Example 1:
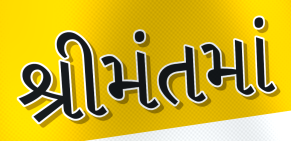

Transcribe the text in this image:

શ્રીમંતમાં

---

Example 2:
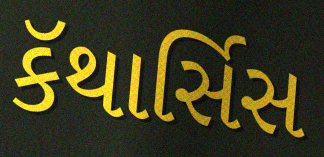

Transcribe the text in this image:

કૅથાર્સિસ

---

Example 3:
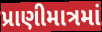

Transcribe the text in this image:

પ્રાણીમાત્રમાં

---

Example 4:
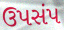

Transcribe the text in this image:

ઉપસંપ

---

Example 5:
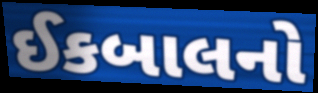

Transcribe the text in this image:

ઈકબાલનો